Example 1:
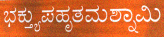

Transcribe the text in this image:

ಭಕ್ತ್ಯುಪಹೃತಮಶ್ನಾಮಿ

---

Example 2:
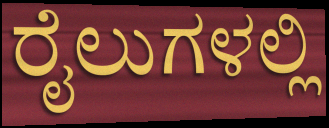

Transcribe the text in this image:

ರೈಲುಗಳಲ್ಲಿ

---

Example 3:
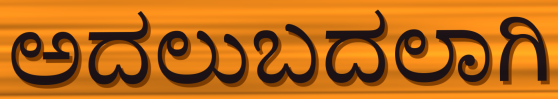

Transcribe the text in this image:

ಅದಲುಬದಲಾಗಿ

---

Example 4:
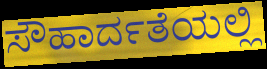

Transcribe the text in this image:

ಸೌಹಾರ್ದತೆಯಲ್ಲಿ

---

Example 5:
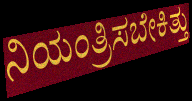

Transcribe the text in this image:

ನಿಯಂತ್ರಿಸಬೇಕಿತ್ತು